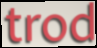
trod